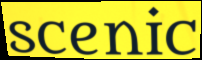
scenic